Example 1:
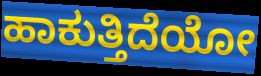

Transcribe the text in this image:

ಹಾಕುತ್ತಿದೆಯೋ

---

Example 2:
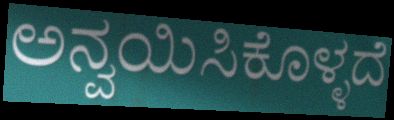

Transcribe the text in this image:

ಅನ್ವಯಿಸಿಕೊಳ್ಳದೆ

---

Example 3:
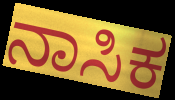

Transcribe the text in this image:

ನಾಸಿಕ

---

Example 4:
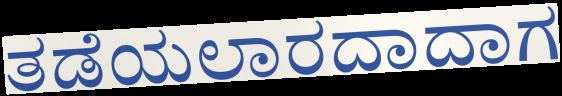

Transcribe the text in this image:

ತಡೆಯಲಾರದಾದಾಗ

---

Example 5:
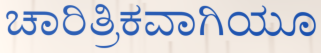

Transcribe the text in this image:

ಚಾರಿತ್ರಿಕವಾಗಿಯೂ